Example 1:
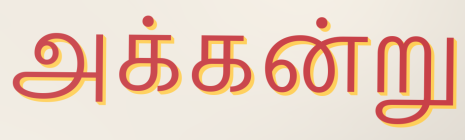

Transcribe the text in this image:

அக்கன்று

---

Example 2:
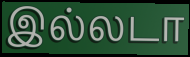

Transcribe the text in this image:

இல்லடா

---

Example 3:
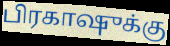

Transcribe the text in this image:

பிரகாஷுக்கு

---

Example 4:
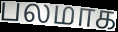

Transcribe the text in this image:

பலமாக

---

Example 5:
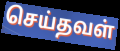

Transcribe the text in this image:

செய்தவள்